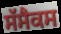
ਸੱਸੈਕਸ